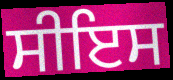
ਸੀਇਸ